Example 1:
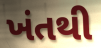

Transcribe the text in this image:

ખંતથી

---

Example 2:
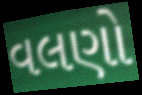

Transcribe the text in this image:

વલણો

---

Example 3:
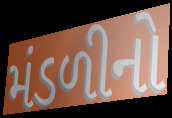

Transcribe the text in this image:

મંડળીનો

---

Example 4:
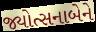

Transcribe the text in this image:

જ્યોત્સનાબેને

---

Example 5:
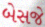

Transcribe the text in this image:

બેસજે